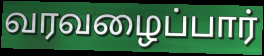
வரவழைப்பார்